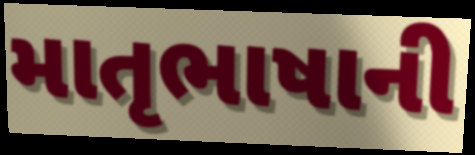
માતૃભાષાની